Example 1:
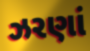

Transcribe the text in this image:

ઝરણાં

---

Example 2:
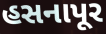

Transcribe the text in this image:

હસનાપૂર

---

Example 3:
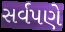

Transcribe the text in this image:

સર્વપણે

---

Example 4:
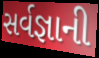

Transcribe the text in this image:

સર્વજ્ઞાની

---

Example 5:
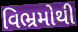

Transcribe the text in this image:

વિભ્રમોથી